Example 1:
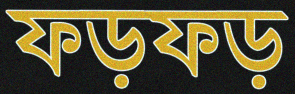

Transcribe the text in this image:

ফড়ফড়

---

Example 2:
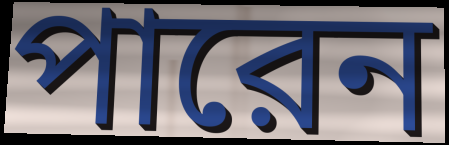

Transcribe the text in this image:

পারেন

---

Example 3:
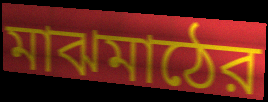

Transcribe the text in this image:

মাঝমাঠের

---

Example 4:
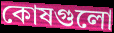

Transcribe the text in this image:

কোষগুলো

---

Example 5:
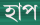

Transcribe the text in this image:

হাপ